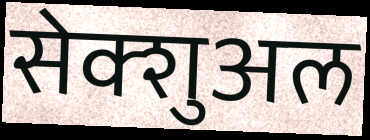
सेक्शुअल